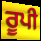
ਰੂਪੀ